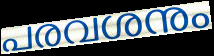
പരവശനും